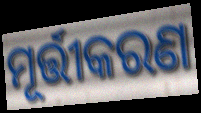
ମୂର୍ତ୍ତୀକରଣ